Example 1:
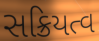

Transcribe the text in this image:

સક્રિયત્વ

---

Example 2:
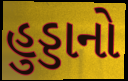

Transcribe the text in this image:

હુડ્ડાનો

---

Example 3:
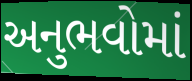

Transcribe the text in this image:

અનુભવોમાં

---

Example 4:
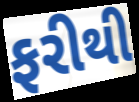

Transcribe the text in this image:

ફરીથી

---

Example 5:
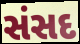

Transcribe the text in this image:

સંસદ